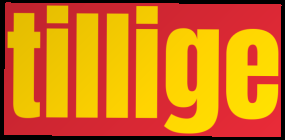
tillige